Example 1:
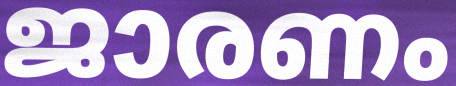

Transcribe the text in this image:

ജാരണം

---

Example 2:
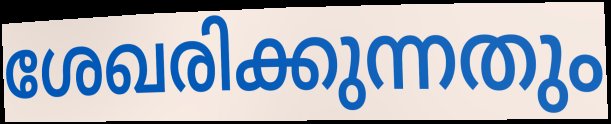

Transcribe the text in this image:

ശേഖരിക്കുന്നതും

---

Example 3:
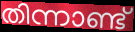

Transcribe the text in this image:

തിന്നാണ്ട്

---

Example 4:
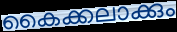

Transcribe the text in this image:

കൈക്കലാക്കും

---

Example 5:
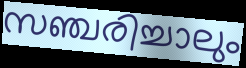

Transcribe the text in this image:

സഞ്ചരിച്ചാലും